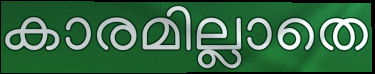
കാരമില്ലാതെ